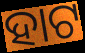
ହାଟ